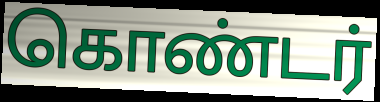
கொண்டர்